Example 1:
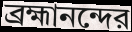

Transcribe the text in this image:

ব্রহ্মানন্দের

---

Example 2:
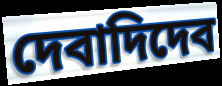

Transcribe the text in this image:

দেবাদিদেব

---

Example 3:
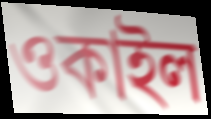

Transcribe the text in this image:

ওকাইল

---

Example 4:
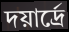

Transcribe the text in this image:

দয়ার্দ্রে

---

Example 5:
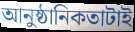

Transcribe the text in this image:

আনুষ্ঠানিকতাটাই